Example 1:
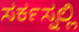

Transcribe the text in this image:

ಸರ್ಕಸ್ನಲ್ಲಿ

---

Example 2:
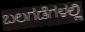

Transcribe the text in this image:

ಬಲಗಡೆಗಳಲ್ಲಿ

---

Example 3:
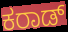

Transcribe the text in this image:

ಕರಾಡ್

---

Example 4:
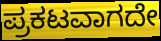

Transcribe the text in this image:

ಪ್ರಕಟವಾಗದೇ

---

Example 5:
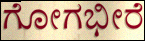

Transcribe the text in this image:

ಗೋಗಭೀರೆ